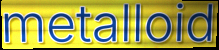
metalloid